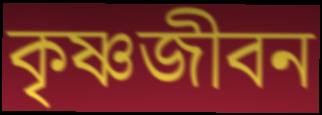
কৃষ্ণজীবন